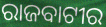
ରାଜବାଟୀର